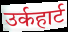
उर्कहार्ट